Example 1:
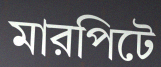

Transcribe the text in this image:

মারপিটে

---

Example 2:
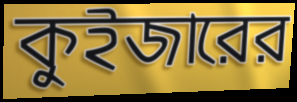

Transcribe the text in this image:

কুইজারের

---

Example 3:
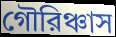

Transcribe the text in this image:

গৌরিঞ্চাস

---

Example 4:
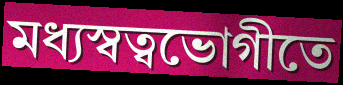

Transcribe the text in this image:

মধ্যস্বত্বভোগীতে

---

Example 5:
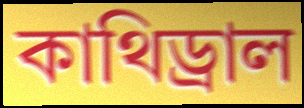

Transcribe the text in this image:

কাথিড্রাল